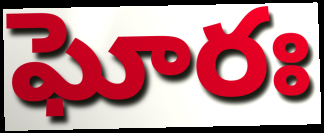
ఘోరః